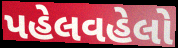
પહેલવહેલો